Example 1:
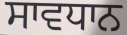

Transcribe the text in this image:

ਸਾਵਧਾਨ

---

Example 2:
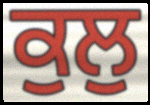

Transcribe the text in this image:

ਕੁਲੁ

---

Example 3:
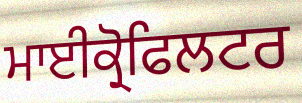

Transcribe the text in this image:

ਮਾਈਕ੍ਰੋਫਿਲਟਰ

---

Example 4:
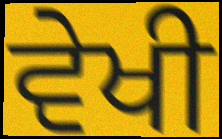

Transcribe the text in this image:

ਵੇਖੀ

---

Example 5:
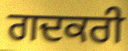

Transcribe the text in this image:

ਗਦਕਰੀ